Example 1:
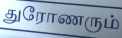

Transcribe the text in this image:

துரோணரும்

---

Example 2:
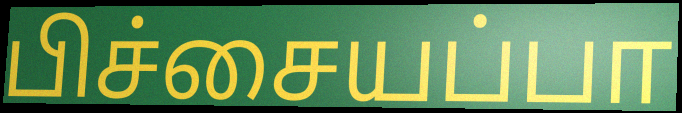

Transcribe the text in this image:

பிச்சையப்பா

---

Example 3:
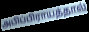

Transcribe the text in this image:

அபிப்பிராயத்தால்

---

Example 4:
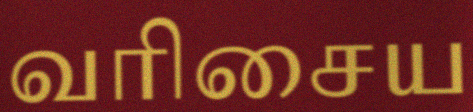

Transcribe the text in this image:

வரிசைய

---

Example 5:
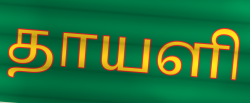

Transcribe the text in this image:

தாயளி